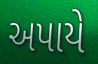
અપાયે